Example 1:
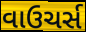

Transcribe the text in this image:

વાઉચર્સ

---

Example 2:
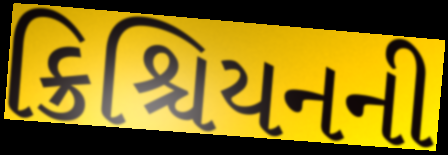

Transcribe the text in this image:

ક્રિશ્ચિયનની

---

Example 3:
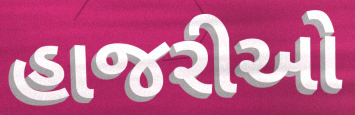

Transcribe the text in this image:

હાજરીઓ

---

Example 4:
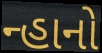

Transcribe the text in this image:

ન્હાનો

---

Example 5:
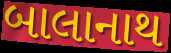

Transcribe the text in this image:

બાલાનાથ